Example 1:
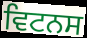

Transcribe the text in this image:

ਵਿਟਨਸ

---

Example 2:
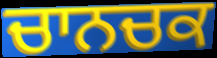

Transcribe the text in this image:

ਚਾਨਚਕ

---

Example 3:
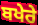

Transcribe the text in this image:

ਬਖੇਰੇ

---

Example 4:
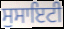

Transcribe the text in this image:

ਸੁਸਾਇਟੀ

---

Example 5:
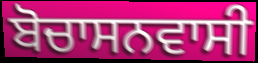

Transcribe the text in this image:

ਬੋਚਾਸਨਵਾਸੀ